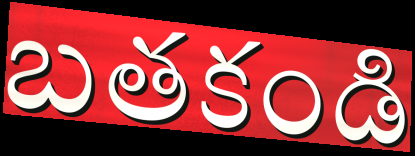
బతకండి